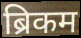
ब्रिकम